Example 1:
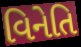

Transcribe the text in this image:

વિનેતિ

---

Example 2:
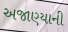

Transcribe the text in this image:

અજાણ્યાની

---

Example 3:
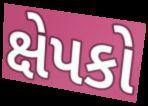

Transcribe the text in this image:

ક્ષેપકો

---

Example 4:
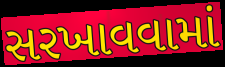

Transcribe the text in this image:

સરખાવવામાં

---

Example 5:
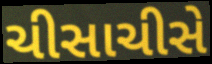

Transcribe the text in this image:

ચીસાચીસે